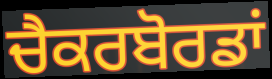
ਚੈਕਰਬੋਰਡਾਂ